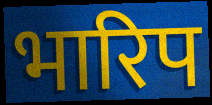
भारिप